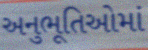
અનુભૂતિઓમાં